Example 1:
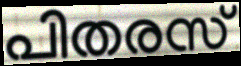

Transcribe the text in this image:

പിതരസ്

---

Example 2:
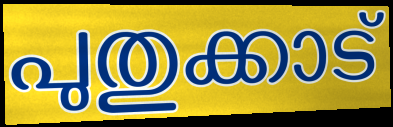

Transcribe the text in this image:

പുതുക്കാട്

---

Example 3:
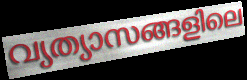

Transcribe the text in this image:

വ്യത്യാസങ്ങളിലെ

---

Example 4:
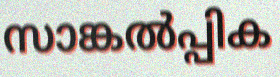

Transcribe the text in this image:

സാങ്കൽപ്പിക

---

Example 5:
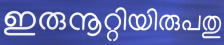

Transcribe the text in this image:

ഇരുനൂറ്റിയിരുപതു